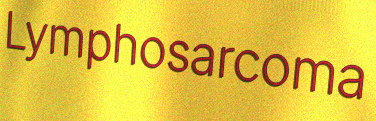
Lymphosarcoma